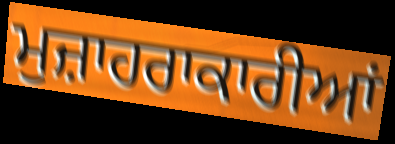
ਮੁਜ਼ਾਹਰਾਕਾਰੀਆਂ